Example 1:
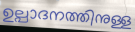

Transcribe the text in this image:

ഉല്പാദനത്തിനുള്ള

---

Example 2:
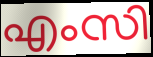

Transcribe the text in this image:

എംസി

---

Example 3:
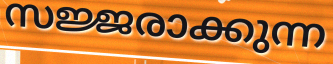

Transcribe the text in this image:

സജ്ജരാക്കുന്ന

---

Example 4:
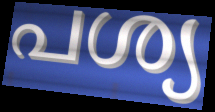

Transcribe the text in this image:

പശ്യ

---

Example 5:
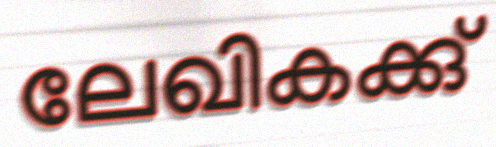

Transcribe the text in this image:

ലേഖികക്കു്